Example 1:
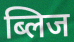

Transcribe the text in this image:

ब्लिज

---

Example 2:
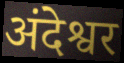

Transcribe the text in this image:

अंदेश्वर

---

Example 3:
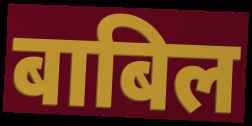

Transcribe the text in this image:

बाबिल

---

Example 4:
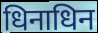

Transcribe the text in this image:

धिनाधिन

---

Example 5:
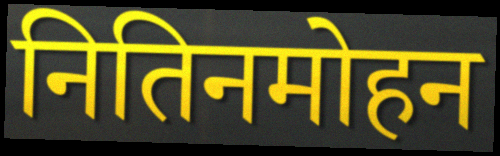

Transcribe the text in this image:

नितिनमोहन